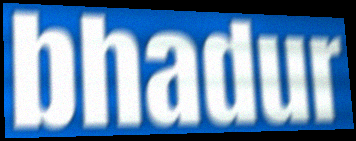
bhadur